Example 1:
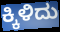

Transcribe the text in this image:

ಕ್ಕಿಳಿದು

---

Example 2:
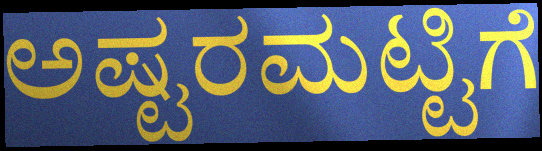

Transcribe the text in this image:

ಅಷ್ಟರಮಟ್ಟಿಗೆ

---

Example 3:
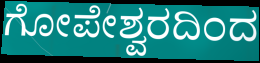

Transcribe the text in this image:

ಗೋಪೇಶ್ವರದಿಂದ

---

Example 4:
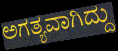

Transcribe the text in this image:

ಅಗತ್ಯವಾಗಿದ್ದು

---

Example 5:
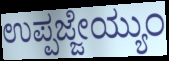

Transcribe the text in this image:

ಉಪ್ಪಜ್ಜೇಯ್ಯುಂ